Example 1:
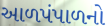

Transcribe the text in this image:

આળપંપાળનો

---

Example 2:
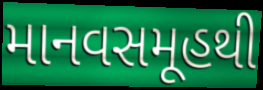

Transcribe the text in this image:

માનવસમૂહથી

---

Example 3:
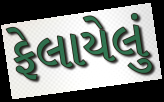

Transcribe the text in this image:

ફેલાયેલું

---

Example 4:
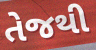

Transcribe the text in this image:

તેજથી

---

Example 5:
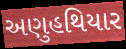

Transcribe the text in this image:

અણુહથિયાર